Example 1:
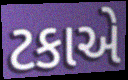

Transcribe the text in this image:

ટકાએ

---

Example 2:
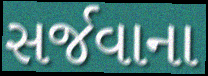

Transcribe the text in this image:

સર્જવાના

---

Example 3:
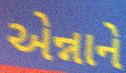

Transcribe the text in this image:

એન્નાને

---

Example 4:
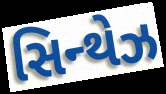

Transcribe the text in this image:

સિન્થેઝ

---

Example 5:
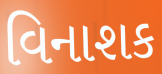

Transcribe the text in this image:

વિનાશક